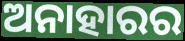
ଅନାହାରର